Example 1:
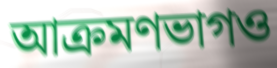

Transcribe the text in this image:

আক্রমণভাগও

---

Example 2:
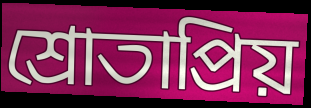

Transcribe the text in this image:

শ্রোতাপ্রিয়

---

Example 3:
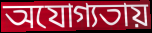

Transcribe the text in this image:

অযোগ্যতায়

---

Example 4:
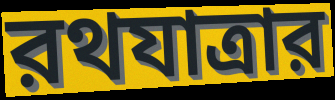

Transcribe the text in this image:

রথযাত্রার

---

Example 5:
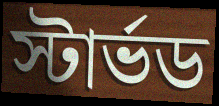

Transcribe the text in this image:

স্টার্ভড